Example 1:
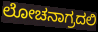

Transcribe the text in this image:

ಲೋಚನಾಗ್ರದಲಿ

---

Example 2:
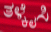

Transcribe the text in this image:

ತಳ್ಕೈಸಿ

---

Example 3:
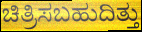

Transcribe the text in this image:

ಚಿತ್ರಿಸಬಹುದಿತ್ತು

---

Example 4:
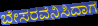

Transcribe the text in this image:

ಬೇಸರವೆನಿಸಿದಾಗ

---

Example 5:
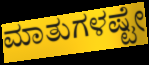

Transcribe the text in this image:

ಮಾತುಗಳಷ್ಟೇ